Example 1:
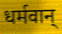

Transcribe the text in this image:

धर्मवान्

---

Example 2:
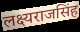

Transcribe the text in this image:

लक्ष्यराजसिंह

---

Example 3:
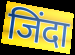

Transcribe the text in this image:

जिंदा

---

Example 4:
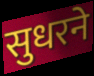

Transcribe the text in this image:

सुधरने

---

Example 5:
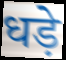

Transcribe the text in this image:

धड़े